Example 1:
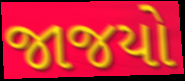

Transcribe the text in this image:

જાજયો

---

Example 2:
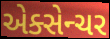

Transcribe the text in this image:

એક્સેન્ચર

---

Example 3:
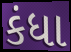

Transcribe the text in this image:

કંધા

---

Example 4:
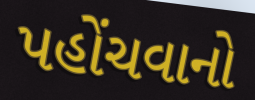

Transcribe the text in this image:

પહોંચવાનો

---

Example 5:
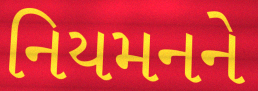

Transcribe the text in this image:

નિયમનને